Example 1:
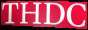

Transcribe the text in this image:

THDC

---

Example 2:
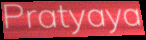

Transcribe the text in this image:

Pratyaya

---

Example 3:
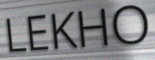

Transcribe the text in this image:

LEKHO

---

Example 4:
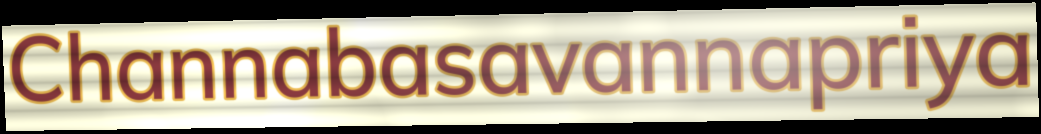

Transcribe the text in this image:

Channabasavannapriya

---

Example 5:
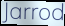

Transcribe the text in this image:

Jarrod